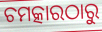
ଚମତ୍କାରଠାରୁ